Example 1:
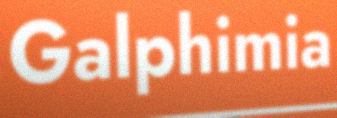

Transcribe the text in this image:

Galphimia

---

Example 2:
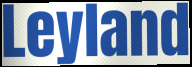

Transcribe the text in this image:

Leyland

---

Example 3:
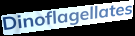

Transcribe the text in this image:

Dinoflagellates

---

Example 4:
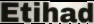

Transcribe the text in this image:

Etihad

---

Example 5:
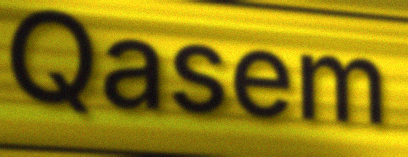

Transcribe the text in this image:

Qasem